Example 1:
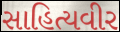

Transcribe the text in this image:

સાહિત્યવીર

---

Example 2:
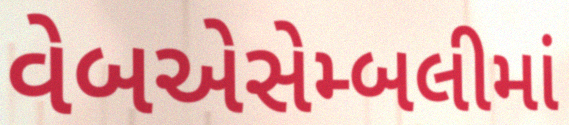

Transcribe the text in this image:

વેબએસેમ્બલીમાં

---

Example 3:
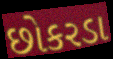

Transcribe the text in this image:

છોકરડા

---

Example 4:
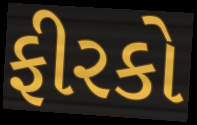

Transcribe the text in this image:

ફીરકો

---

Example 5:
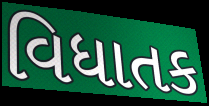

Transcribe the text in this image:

વિધાતક